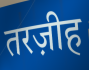
तरज़ीह